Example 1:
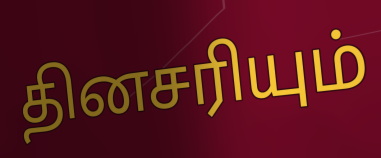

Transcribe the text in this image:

தினசரியும்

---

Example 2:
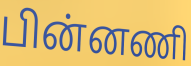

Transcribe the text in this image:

பின்னணி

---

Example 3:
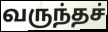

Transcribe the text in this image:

வருந்தச்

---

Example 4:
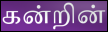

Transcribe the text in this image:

கன்றின்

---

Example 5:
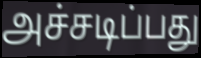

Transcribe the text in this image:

அச்சடிப்பது